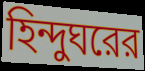
হিন্দুঘরের